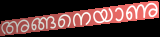
അങ്ങനെയാണു